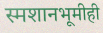
स्मशानभूमीही